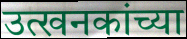
उत्खनकांच्या